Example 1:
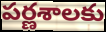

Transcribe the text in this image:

పర్ణశాలకు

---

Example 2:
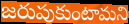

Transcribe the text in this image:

జరుపుకుంటామని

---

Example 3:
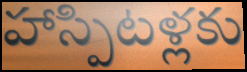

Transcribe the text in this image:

హాస్పిటళ్లకు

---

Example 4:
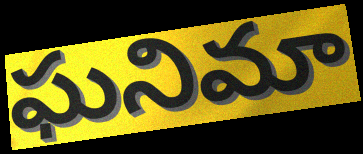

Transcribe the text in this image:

ఘనిమా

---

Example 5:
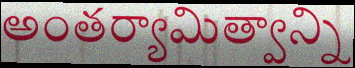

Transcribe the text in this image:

అంతర్యామిత్వాన్ని